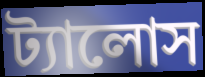
ট্যালোস